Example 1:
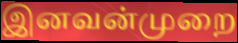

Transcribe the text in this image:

இனவன்முறை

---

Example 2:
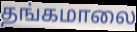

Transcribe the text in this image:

தங்கமாலை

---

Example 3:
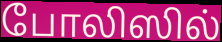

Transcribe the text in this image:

போலிஸில்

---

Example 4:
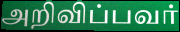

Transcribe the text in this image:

அறிவிப்பவர்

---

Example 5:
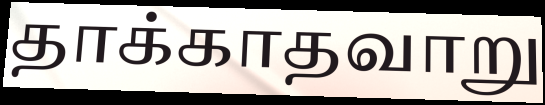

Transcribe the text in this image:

தாக்காதவாறு